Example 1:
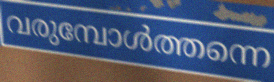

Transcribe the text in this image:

വരുമ്പോൾത്തന്നെ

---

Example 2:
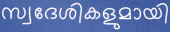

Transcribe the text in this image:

സ്വദേശികളുമായി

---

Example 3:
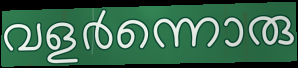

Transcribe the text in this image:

വളർന്നൊരു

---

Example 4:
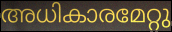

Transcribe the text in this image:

അധികാരമേറ്റു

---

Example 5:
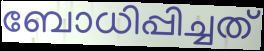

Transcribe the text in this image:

ബോധിപ്പിച്ചത്